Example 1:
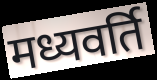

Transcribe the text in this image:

मध्यवर्ति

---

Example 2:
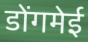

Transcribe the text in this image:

डोंगमेई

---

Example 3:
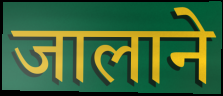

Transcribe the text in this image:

जालाने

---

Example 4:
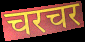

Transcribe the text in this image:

चरचर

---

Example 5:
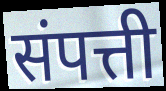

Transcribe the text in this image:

संपत्ती